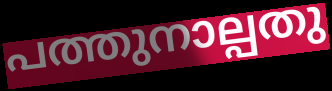
പത്തുനാല്പതു